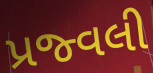
પ્રજ્વલી